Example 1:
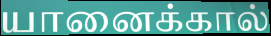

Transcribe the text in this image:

யானைக்கால்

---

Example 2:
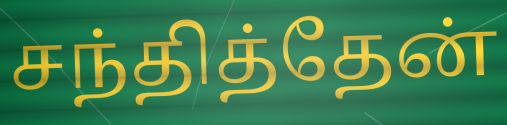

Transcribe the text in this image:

சந்தித்தேன்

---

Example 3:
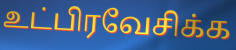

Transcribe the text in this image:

உட்பிரவேசிக்க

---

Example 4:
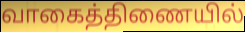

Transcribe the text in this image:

வாகைத்திணையில்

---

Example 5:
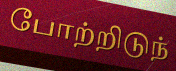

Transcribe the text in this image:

போற்றிடுந்